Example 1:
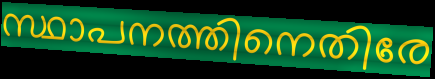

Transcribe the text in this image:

സ്ഥാപനത്തിനെതിരേ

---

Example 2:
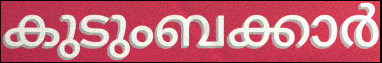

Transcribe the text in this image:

കുടുംബക്കാർ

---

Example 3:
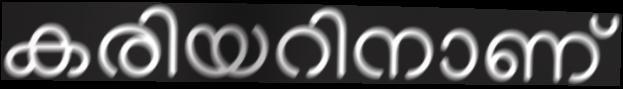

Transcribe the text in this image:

കരിയറിനാണ്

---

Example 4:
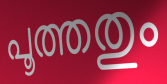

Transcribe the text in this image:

പൂത്തതും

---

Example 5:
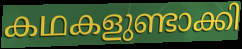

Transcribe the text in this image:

കഥകളുണ്ടാക്കി